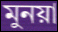
মুনয়া